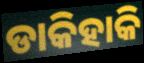
ଡାକିହାକି